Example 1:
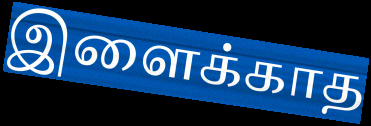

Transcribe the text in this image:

இளைக்காத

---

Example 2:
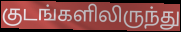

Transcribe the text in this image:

குடங்களிலிருந்து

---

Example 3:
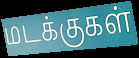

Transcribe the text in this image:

மடக்குகள்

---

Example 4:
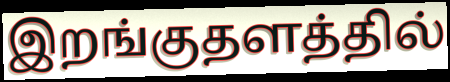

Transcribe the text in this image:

இறங்குதளத்தில்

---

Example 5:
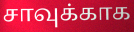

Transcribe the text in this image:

சாவுக்காக